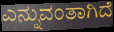
ಎನ್ನುವಂತಾಗಿದೆ